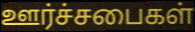
ஊர்ச்சபைகள்